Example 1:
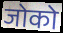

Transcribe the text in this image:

जोको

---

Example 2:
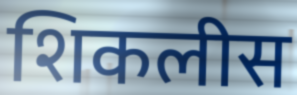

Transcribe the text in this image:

शिकलीस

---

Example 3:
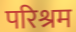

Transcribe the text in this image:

परिश्रम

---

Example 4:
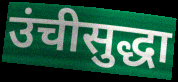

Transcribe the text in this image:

उंचीसुद्धा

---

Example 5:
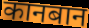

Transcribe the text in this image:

कानबान